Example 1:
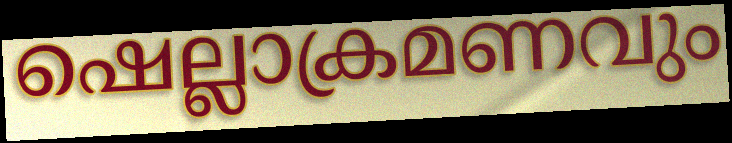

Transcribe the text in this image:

ഷെല്ലാക്രമണവും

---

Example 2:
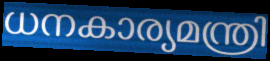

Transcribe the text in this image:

ധനകാര്യമന്ത്രി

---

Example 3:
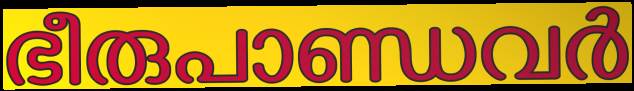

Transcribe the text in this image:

ഭീരുപാണ്ഡവർ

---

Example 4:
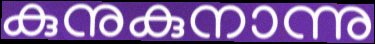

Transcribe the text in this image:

കുനുകുനാന്നു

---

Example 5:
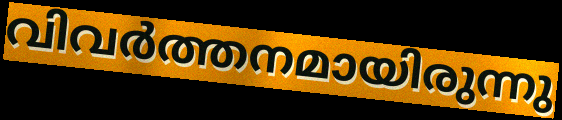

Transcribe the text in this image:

വിവർത്തനമായിരുന്നു